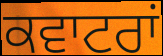
ਕਵਾਟਰਾਂ